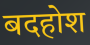
बदहोश